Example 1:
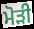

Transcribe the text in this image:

ਮੋੜੀ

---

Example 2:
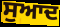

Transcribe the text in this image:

ਸੁਆਦ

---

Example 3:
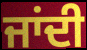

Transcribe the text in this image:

ਜਾਂਦੀ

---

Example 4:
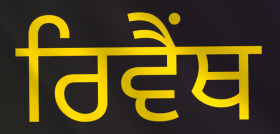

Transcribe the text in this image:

ਰਿਵੈਂਥ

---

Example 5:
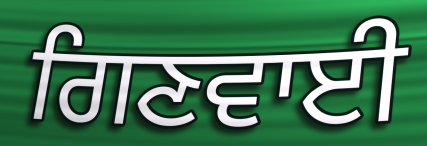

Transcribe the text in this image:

ਗਿਣਵਾਈ